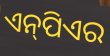
ଏନ୍‌ପିଏର